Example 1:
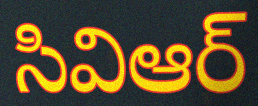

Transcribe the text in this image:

సివిఆర్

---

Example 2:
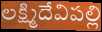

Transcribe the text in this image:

లక్ష్మిదేవిపల్లి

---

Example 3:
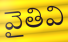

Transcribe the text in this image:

వైతివి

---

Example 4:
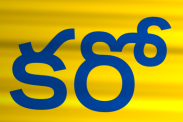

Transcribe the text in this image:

కరో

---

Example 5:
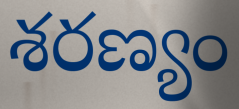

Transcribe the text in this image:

శరణ్యం